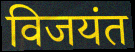
विजयंत